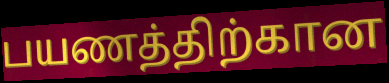
பயணத்திற்கான